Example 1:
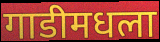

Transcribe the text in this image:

गाडीमधला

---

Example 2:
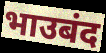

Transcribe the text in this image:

भाउबंद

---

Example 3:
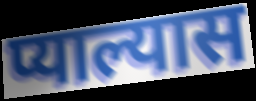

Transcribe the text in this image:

प्याल्यास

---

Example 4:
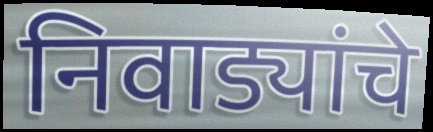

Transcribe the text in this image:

निवाड्यांचे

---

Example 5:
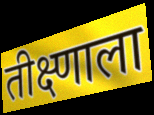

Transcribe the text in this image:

तीक्ष्णाला